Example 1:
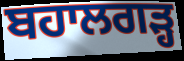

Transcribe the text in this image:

ਬਹਾਲਗੜ੍ਹ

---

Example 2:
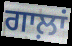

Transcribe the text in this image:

ਗਾਲ਼ਾਂ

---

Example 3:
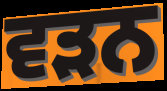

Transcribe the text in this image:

ਵੜਨ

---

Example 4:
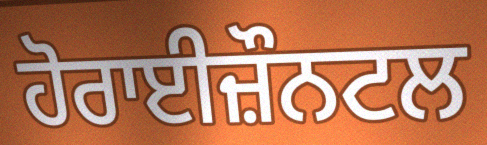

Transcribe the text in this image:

ਹੋਰਾਈਜ਼ੌਨਟਲ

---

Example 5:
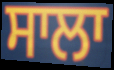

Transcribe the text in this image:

ਸਾਲਾ